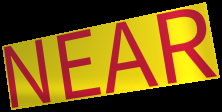
NEAR